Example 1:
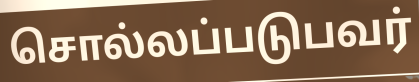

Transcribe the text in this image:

சொல்லப்படுபவர்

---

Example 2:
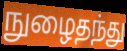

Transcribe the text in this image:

நுழைதந்து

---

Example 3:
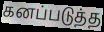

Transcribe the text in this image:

கனப்படுத்த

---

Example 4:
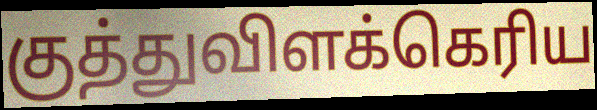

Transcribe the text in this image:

குத்துவிளக்கெரிய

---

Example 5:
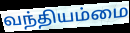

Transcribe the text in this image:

வந்தியம்மை